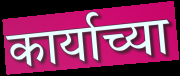
कार्याच्या